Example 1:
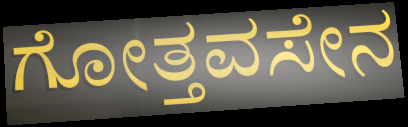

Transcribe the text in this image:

ಗೋತ್ತವಸೇನ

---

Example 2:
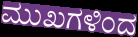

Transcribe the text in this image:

ಮುಖಗಳಿಂದ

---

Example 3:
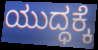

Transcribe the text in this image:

ಯುದ್ಧಕ್ಕೆ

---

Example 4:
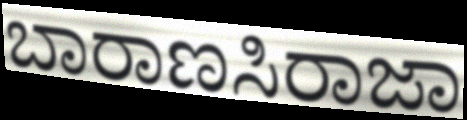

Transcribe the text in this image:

ಬಾರಾಣಸಿರಾಜಾ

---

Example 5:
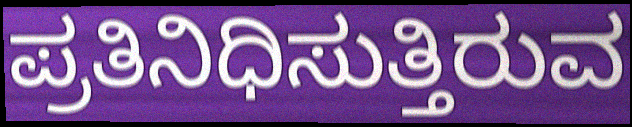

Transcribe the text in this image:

ಪ್ರತಿನಿಧಿಸುತ್ತಿರುವ